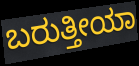
ಬರುತ್ತೀಯಾ